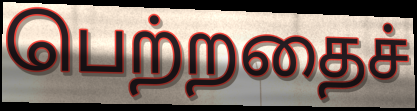
பெற்றதைச்